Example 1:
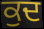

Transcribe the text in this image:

ਕੁਦ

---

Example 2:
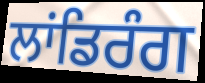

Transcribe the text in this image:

ਲਾਂਡਿਰੰਗ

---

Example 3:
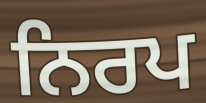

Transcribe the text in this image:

ਨਿਰਪ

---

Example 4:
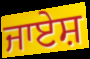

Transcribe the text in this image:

ਜਾਏਸ਼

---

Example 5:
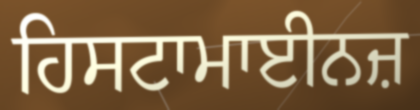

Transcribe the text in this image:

ਹਿਸਟਾਮਾਈਨਜ਼